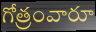
గోత్రంవారూ